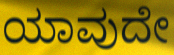
ಯಾವುದೇ